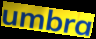
umbra